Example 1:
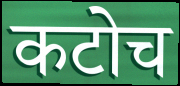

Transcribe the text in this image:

कटोच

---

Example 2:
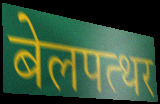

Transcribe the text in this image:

बेलपत्थर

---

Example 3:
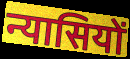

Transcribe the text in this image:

न्यासियों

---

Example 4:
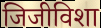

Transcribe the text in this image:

जिजीविशा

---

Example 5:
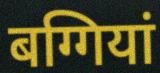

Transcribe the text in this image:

बग्गियां